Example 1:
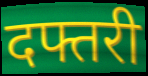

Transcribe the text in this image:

दफ्तरी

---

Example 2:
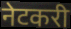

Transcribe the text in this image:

नेटकरी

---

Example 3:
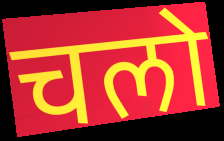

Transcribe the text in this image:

चलो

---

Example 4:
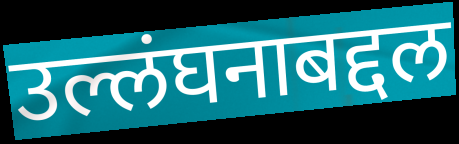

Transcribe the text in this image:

उल्लंघनाबद्दल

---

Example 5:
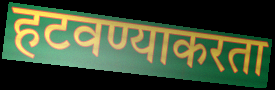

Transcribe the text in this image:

हटवण्याकरता